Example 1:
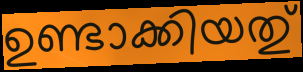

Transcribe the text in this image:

ഉണ്ടാക്കിയതു്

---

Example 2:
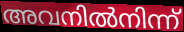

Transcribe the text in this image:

അവനിൽനിന്ന്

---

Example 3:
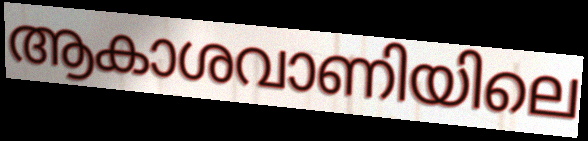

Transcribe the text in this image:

ആകാശവാണിയിലെ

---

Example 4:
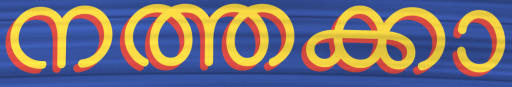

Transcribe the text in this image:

നത്തക്കാ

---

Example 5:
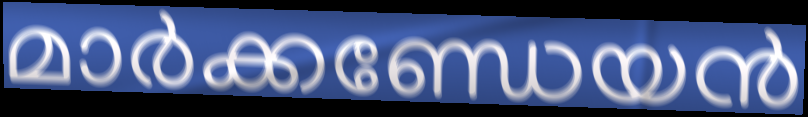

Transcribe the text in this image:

മാർക്കണ്ഡേയൻ